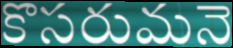
కొసరుమనె